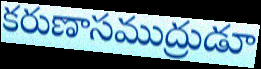
కరుణాసముద్రుడూ